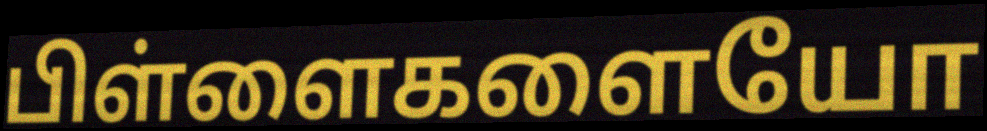
பிள்ளைகளையோ